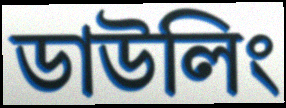
ডাউলিং